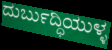
ದುರ್ಬುದ್ಧಿಯುಳ್ಳ